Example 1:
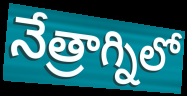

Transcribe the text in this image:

నేత్రాగ్నిలో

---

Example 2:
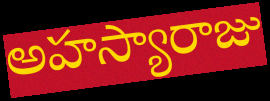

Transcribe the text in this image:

అహస్యారాజు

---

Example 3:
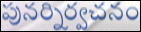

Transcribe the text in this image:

పునర్నిర్వచనం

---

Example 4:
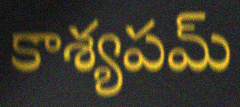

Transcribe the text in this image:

కాశ్యపమ్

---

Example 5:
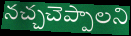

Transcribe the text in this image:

నచ్చచెప్పాలని